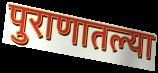
पुराणातल्या